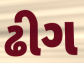
ઢીગ